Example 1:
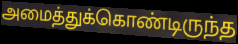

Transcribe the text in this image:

அமைத்துக்கொண்டிருந்த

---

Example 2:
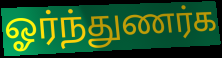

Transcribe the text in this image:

ஓர்ந்துணர்க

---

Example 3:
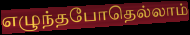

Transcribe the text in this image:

எழுந்தபோதெல்லாம்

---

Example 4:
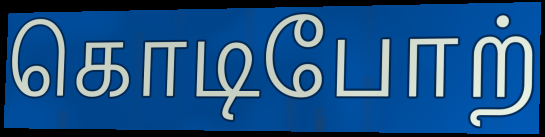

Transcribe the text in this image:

கொடிபோற்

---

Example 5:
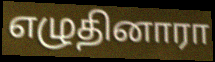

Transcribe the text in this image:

எழுதினாரா